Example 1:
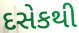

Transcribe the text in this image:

દસેકથી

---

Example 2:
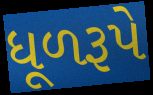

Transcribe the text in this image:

ધૂળરૂપે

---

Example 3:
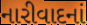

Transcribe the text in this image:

નારીવાદનાં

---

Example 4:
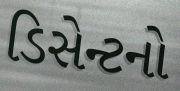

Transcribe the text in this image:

ડિસેન્ટનો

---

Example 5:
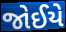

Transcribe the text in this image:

જોઈયે